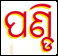
ପଣ୍ଡି